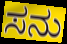
ಸನು